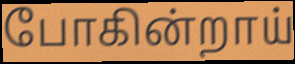
போகின்றாய்